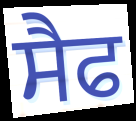
ਸੈਫ